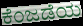
ಕೆಂಜಡೆಯ